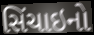
સિંચાઇનો